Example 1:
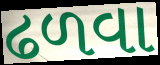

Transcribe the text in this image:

ઢળવા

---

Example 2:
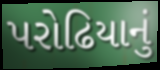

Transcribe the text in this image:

પરોઢિયાનું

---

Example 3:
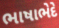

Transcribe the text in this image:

ભાષાભેદે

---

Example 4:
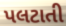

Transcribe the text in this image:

પલટાતી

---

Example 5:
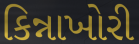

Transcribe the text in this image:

કિન્નાખોરી